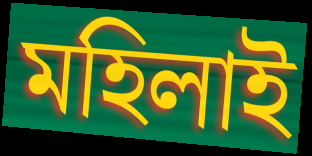
মহিলাই